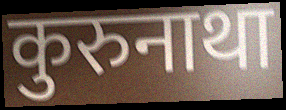
कुरुनाथा